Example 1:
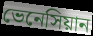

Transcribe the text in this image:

ভেনেসিয়ান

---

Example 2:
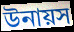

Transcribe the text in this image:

উনায়স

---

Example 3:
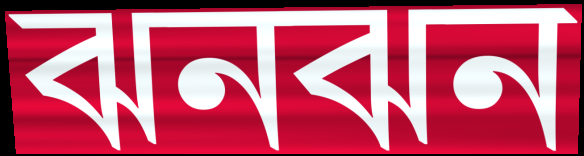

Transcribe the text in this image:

ঝনঝন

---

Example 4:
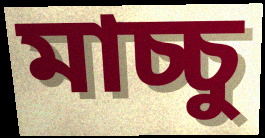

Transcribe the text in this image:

মাচ্চু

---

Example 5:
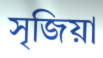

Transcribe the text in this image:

সৃজিয়া